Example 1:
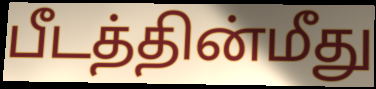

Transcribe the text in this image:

பீடத்தின்மீது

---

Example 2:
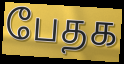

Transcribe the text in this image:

பேதக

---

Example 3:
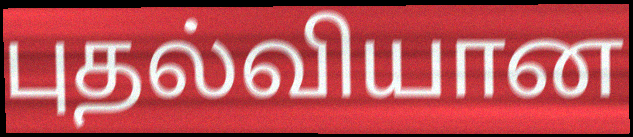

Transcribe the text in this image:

புதல்வியான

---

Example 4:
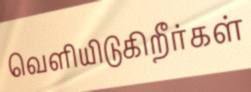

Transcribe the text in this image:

வெளியிடுகிறீர்கள்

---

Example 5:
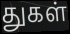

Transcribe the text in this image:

துகள்